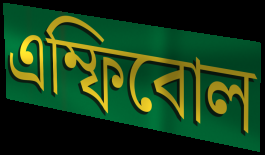
এম্ফিবোল